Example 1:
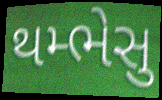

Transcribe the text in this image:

થમ્ભેસુ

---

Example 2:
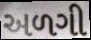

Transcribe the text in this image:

અળગી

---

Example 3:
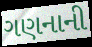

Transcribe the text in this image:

ગણનાની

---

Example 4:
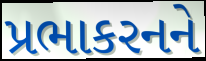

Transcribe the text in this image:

પ્રભાકરનને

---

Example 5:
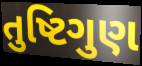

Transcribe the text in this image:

તુષ્ટિગુણ